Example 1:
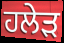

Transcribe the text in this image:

ਹਲੇੜ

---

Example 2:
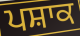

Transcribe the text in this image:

ਪਸ਼ਾਕ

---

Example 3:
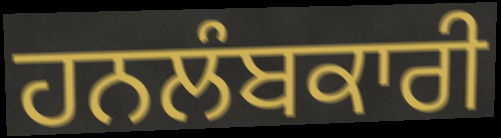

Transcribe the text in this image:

ਹਨਲੰਬਕਾਰੀ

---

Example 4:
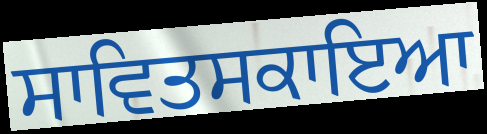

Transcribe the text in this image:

ਸਾਵਿਤਸਕਾਇਆ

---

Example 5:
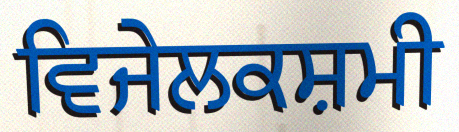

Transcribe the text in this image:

ਵਿਜੇਲਕਸ਼ਮੀ